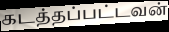
கடத்தப்பட்டவன்